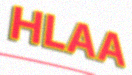
HLAA